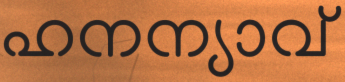
ഹനന്യാവ്